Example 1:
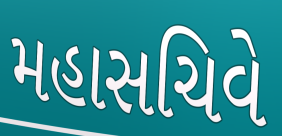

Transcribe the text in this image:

મહાસચિવે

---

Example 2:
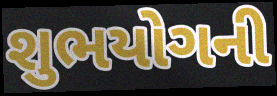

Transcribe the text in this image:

શુભયોગની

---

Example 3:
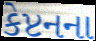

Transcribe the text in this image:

કેપ્ટનના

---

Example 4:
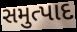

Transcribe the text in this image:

સમુત્પાદ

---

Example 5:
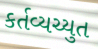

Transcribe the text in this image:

કર્તવ્યચ્યુત